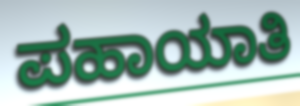
ಪಹಾಯಾತಿ